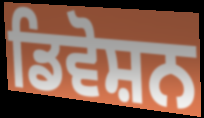
ਡਿਵੋਸ਼ਨ